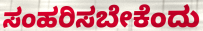
ಸಂಹರಿಸಬೇಕೆಂದು